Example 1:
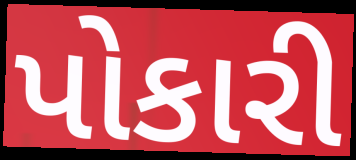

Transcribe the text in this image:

પોકારી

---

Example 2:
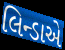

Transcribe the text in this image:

લિન્ડાએ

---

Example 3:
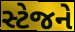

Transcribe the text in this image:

સ્ટેજને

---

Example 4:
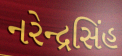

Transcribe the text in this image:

નરેન્દ્રસિંહ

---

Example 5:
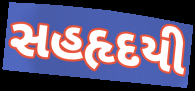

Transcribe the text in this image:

સહહૃદયી